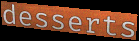
desserts